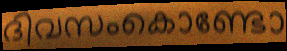
ദിവസംകൊണ്ടോ